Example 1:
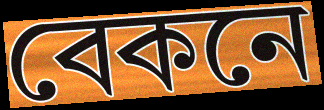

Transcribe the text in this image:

বেকনে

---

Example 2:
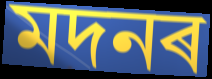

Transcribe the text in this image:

মদনৰ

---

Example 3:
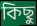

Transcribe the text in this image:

কিছু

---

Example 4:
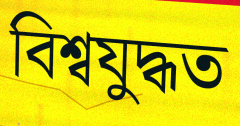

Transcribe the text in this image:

বিশ্বযুদ্ধত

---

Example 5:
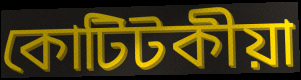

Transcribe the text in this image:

কোটিটকীয়া